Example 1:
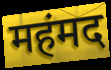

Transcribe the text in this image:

महंमद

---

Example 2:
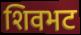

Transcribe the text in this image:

शिवभट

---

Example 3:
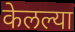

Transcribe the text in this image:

केलल्या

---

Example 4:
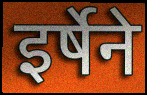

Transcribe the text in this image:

इर्षेने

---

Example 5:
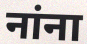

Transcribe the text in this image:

नांना